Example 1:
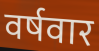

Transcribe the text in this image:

वर्षवार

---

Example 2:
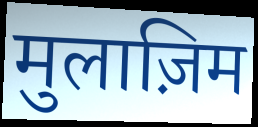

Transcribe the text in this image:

मुलाज़िम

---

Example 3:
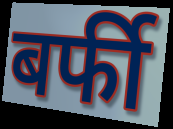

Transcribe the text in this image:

बर्फी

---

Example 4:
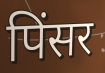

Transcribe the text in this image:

पिंसर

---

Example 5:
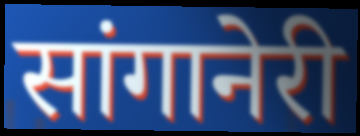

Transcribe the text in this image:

सांगानेरी